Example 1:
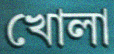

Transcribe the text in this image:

খোলা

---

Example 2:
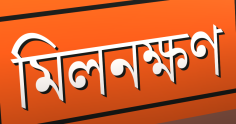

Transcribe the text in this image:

মিলনক্ষণ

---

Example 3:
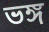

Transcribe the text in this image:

ভঙ্গ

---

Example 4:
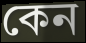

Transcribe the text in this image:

কেন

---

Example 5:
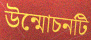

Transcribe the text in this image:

উন্মোচনটি